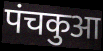
पंचकुआ